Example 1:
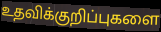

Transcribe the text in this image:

உதவிக்குறிப்புகளை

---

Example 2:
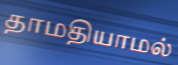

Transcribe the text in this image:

தாமதியாமல்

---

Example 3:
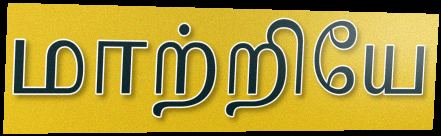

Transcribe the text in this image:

மாற்றியே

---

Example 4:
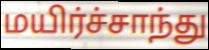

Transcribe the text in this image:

மயிர்ச்சாந்து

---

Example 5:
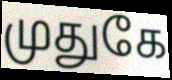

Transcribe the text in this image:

முதுகே